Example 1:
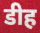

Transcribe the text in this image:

डीह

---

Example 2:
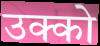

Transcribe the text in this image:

उक्को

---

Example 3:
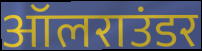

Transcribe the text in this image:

ऑलराउंडर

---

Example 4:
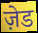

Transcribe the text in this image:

ज़ेड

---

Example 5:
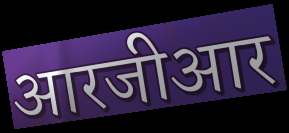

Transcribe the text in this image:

आरजीआर